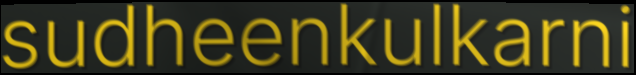
sudheenkulkarni